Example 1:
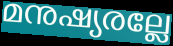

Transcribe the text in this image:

മനുഷ്യരല്ലേ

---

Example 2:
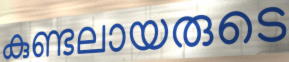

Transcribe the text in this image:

കുണ്ടലായരുടെ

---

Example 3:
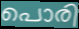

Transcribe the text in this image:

പൊരി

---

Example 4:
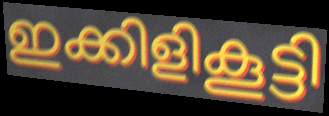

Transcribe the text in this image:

ഇക്കിളികൂട്ടി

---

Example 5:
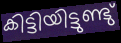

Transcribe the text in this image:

കിട്ടിയിട്ടുണ്ടു്